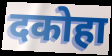
दकोहा